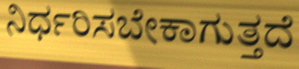
ನಿರ್ಧರಿಸಬೇಕಾಗುತ್ತದೆ